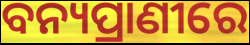
ବନ୍ୟପ୍ରାଣୀରେ